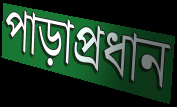
পাড়াপ্রধান